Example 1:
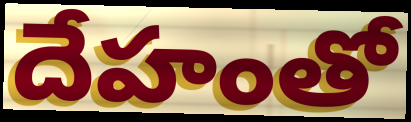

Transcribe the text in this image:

దేహంతో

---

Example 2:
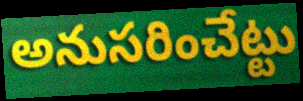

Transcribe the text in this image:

అనుసరించేట్టు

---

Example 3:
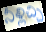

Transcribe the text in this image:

నీళ్లిచ్చి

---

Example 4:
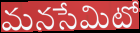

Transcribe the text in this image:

మనసేమిటో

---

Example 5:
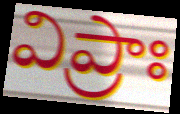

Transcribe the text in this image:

విప్రాః